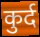
कुर्द